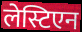
लेस्टिएन